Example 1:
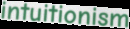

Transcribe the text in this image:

intuitionism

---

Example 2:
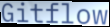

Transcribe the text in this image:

Gitflow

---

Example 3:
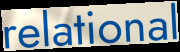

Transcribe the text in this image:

relational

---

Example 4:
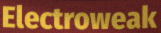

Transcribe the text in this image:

Electroweak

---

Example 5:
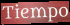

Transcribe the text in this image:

Tiempo